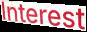
Interest